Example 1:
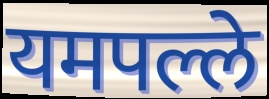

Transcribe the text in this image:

यमपल्ले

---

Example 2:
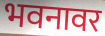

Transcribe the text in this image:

भवनावर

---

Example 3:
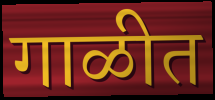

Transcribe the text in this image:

गाळीत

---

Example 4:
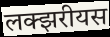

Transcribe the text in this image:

लक्झरीयस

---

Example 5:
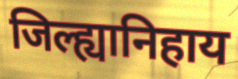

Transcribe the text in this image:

जिल्ह्यानिहाय